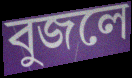
বুজলে